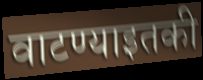
वाटण्याइतकी